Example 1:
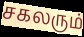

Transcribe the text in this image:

சகலரும்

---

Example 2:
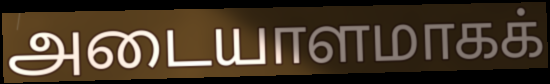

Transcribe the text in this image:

அடையாளமாகக்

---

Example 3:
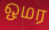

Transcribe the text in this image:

ஒமர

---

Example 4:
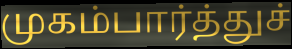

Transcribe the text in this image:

முகம்பார்த்துச்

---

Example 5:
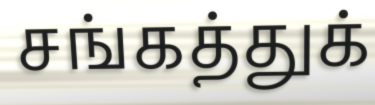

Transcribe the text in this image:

சங்கத்துக்